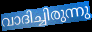
വാദിച്ചിരുന്നു